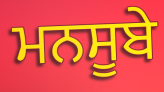
ਮਨਸੂਬੇ